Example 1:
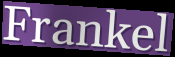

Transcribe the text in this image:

Frankel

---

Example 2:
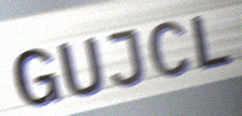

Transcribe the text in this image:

GUJCL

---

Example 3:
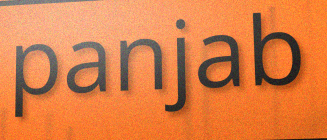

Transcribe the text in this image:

panjab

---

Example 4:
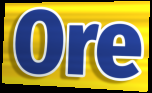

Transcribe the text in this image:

Ore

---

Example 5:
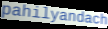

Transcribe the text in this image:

pahilyandach